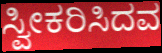
ಸ್ವೀಕರಿಸಿದವ